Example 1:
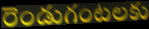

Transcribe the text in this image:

రెండుగంటలకు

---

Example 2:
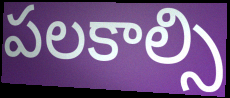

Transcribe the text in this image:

పలకాల్సి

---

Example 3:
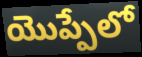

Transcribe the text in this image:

యొప్పేలో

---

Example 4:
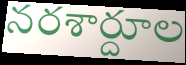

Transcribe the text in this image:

నరశార్దూల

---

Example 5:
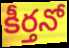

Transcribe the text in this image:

కీర్తనో